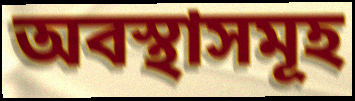
অবস্থাসমূহ